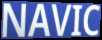
NAVIC